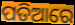
ପଡିଆରେ